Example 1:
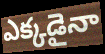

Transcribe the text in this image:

ఎక్కడైనా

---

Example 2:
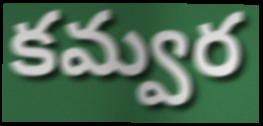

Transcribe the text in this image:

కమ్వర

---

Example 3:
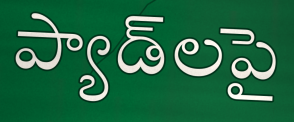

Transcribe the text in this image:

ప్యాడ్‌లపై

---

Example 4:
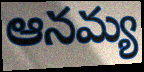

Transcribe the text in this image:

ఆనమ్య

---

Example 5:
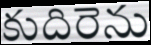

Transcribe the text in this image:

కుదిరెను